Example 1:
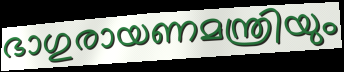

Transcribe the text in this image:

ഭാഗുരായണമന്ത്രിയും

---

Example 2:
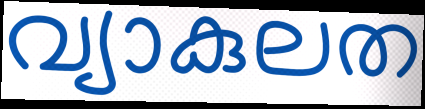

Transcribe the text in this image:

വ്യാകുലത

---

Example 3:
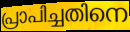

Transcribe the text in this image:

പ്രാപിച്ചതിനെ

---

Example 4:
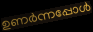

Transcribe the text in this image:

ഉണർന്നപ്പോൾ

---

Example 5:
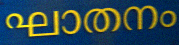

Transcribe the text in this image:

ഘാതനം